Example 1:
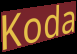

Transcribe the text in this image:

Koda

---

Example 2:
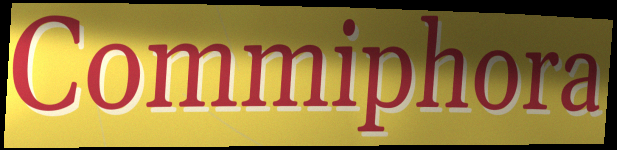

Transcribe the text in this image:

Commiphora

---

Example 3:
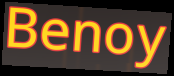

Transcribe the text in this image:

Benoy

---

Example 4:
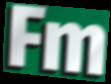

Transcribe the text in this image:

Fm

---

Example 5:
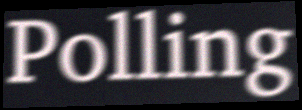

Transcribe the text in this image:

Polling